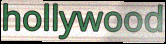
hollywood